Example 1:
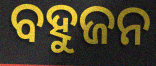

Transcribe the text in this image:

ବହୁଜନ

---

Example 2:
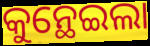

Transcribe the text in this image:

କୁନ୍ଥେଇଲା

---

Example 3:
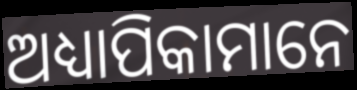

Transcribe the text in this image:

ଅଧ୍ୟାପିକାମାନେ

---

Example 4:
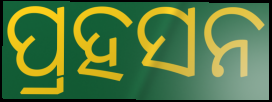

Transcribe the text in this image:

ପ୍ରହସନ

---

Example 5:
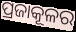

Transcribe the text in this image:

ପ୍ରଜାକୂଳର